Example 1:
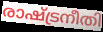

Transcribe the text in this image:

രാഷ്ട്രനീതി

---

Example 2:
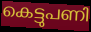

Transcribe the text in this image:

കെട്ടുപണി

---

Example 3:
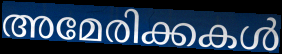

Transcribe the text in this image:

അമേരിക്കകൾ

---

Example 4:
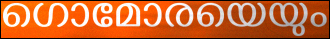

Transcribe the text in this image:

ഗൊമോരയെയും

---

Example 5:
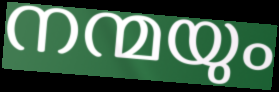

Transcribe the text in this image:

നന്മയും